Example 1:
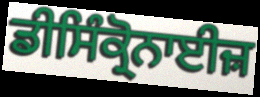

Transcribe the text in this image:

ਡੀਸਿੰਕ੍ਰੋਨਾਈਜ਼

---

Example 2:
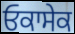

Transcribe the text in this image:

ਓਕਾਸੇਕ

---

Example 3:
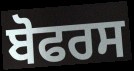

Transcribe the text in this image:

ਬੋਫਰਸ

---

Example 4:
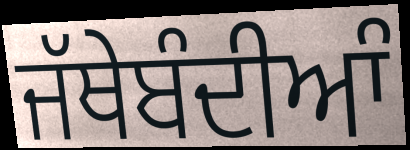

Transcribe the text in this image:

ਜੱਥੇਬੰਦੀਆੰ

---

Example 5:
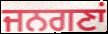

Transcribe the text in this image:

ਜਨਗਣਾਂ